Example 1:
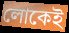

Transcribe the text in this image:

লোকেই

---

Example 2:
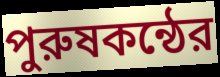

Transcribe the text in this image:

পুরুষকন্ঠের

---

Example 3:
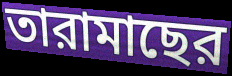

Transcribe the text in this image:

তারামাছের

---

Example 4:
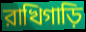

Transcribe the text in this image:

রাখিগাড়ি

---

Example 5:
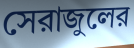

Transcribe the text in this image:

সেরাজুলের